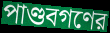
পাণ্ডবগণের